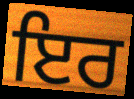
ਇਰ